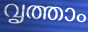
വൃത്താം